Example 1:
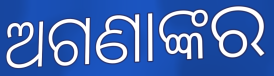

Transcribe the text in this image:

ଅଗଣାଙ୍କର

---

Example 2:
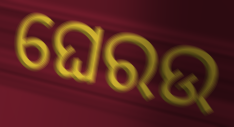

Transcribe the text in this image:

ଘେରଉ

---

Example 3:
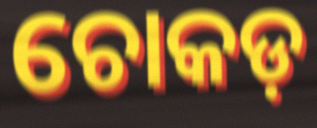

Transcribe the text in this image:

ଚୋକଡ଼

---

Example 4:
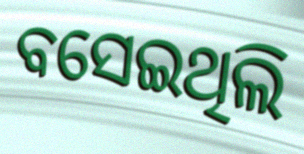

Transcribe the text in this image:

ବସେଇଥିଲି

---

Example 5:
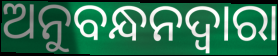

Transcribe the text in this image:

ଅନୁବନ୍ଧନଦ୍ୱାରା